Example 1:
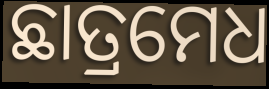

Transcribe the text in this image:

ଛାତ୍ରମେଧ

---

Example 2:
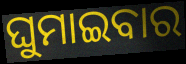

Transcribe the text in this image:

ଘୁମାଇବାର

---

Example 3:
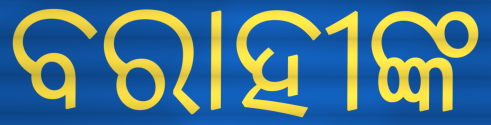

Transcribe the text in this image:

ବରାହୀଙ୍କ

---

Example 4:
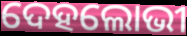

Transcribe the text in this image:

ଦେହଲୋଭୀ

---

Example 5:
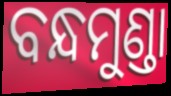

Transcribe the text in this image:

ବନ୍ଧମୁଣ୍ଡା